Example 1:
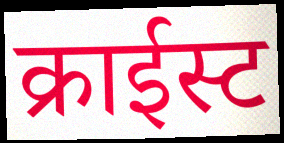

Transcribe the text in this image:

क्राईस्ट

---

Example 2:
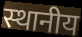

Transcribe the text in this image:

स्‍थानीय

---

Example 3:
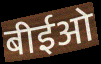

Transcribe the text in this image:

बीईओ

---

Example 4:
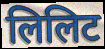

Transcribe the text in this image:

लिलिट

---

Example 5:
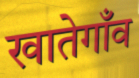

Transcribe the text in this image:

खातेगाँव